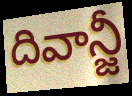
దివాన్జీ